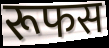
रूफस